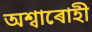
অশ্বাৰোহী